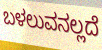
ಬಳಲುವನಲ್ಲದೆ